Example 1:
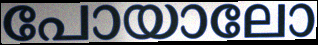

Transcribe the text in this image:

പോയാലോ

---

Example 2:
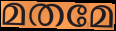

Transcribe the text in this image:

മതമേ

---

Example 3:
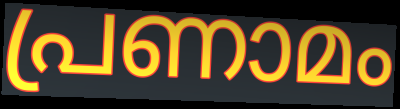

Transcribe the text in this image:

പ്രണാമം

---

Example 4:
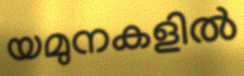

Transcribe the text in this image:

യമുനകളിൽ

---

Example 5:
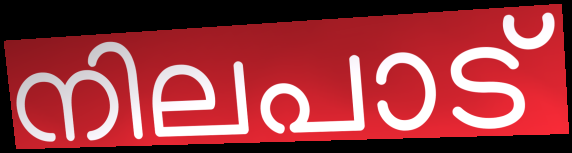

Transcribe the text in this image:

നിലപാട്